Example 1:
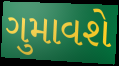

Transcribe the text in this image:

ગુમાવશે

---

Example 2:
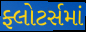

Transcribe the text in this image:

ફ્લોટર્સમાં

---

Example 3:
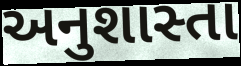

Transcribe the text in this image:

અનુશાસ્તા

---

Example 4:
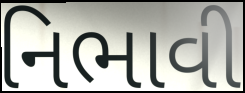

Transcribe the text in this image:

નિભાવી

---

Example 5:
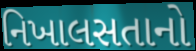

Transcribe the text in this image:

નિખાલસતાનો